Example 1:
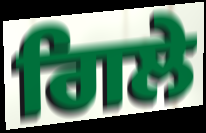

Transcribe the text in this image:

ਗਿਲੇ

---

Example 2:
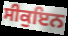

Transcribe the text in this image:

ਸੀਕੁਇਨ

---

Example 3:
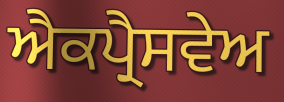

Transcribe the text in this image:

ਐਕਪ੍ਰੈਸਵੇਅ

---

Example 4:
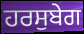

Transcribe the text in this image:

ਹਰਸੁਬੇਗ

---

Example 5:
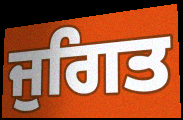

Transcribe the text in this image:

ਜੁਗਿਤ